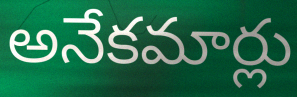
అనేకమార్లు